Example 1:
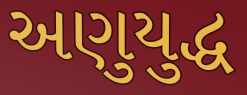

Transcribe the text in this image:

અણુયુદ્ધ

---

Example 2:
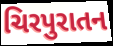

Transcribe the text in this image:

ચિરપુરાતન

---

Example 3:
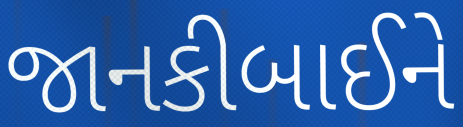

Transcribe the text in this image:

જાનકીબાઈને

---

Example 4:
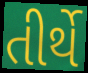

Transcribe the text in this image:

તીર્થે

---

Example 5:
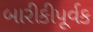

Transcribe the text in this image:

બારીકીપૂર્વક